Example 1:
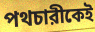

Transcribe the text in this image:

পথচারীকেই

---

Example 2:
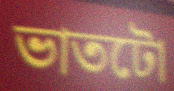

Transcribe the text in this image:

ভাতটো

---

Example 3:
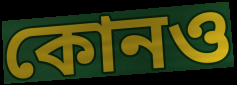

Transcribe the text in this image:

কোনও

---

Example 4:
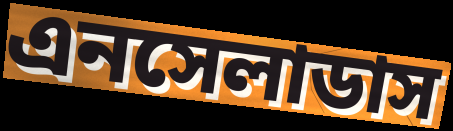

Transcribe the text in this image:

এনসেলাডাস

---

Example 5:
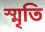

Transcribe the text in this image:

স্মৃতি